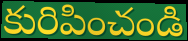
కురిపించండి